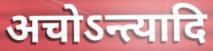
अचोऽन्त्यादि